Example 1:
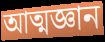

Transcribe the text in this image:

আত্মজ্ঞান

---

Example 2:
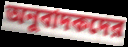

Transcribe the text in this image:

অনুবাদকদের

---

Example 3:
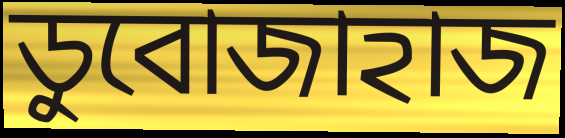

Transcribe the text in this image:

ডুবোজাহাজ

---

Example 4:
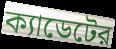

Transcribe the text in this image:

ক্যাডেটের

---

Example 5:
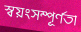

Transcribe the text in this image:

স্বয়ংসম্পূর্ণতা